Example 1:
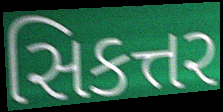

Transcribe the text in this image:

સિકત્તર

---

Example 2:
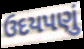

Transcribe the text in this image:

ઉદયપણું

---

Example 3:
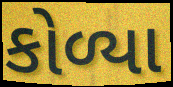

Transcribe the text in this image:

કોળ્યા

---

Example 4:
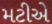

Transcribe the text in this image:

મટીએ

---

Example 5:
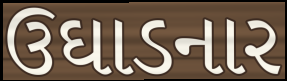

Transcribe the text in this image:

ઉઘાડનાર